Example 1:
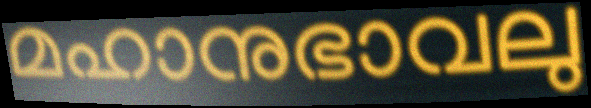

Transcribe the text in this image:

മഹാനുഭാവലു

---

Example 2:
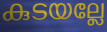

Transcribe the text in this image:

കുടയല്ലേ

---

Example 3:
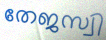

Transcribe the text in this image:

തേജസ്വി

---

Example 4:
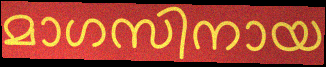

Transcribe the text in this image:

മാഗസിനായ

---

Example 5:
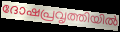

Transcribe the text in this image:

ദോഷപ്രവൃത്തിയിൽ